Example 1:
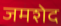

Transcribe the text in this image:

जमशेद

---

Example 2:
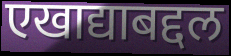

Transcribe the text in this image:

एखाद्याबद्दल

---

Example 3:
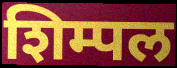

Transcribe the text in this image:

शिम्पल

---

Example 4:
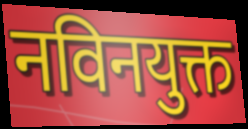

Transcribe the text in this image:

नविनयुक्त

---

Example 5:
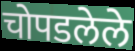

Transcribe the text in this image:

चोपडलेले